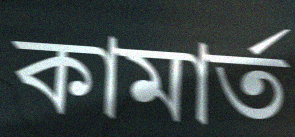
কামাৰ্ত